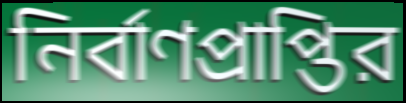
নির্বাণপ্রাপ্তির